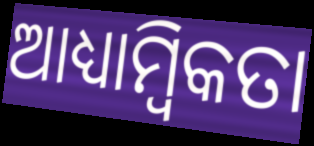
ଆଧ୍ୟାମ୍ବିକତା